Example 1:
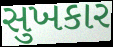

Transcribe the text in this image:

સુખકાર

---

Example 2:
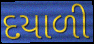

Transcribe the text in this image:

દયાળી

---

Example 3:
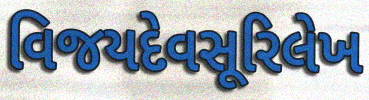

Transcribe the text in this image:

વિજયદેવસૂરિલેખ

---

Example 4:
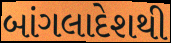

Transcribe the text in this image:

બાંગલાદેશથી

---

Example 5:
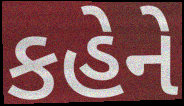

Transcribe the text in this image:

કહેને